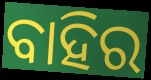
ବାହିର